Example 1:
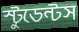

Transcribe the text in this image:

স্টুডেন্টস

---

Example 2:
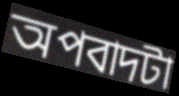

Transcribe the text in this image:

অপবাদটা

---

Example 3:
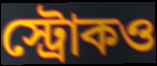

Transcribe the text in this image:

স্ট্রোকও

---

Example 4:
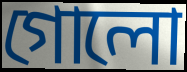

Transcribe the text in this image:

গোলো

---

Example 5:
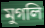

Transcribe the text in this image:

মুগলি